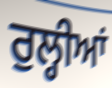
ਰੁਲ੍ਹੀਆਂ